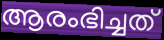
ആരംഭിച്ചത്